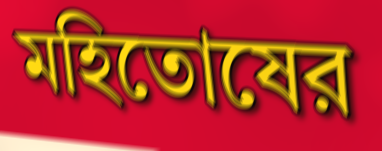
মহিতোষের